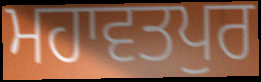
ਮਹਾਵਤਪੁਰ